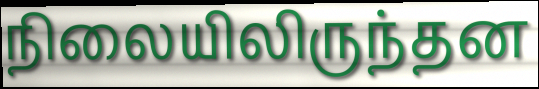
நிலையிலிருந்தன